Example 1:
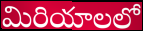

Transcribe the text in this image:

మిరియాలలో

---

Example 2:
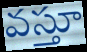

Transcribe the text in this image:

వస్తూ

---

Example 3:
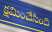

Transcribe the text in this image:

క్షమించేసింది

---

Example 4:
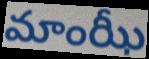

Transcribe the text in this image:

మాంఝీ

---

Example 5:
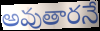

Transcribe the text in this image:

అవుతారనే